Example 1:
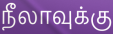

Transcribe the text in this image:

நீலாவுக்கு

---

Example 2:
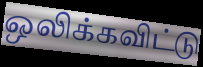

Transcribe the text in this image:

ஒலிக்கவிட்டு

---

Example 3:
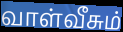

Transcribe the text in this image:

வாள்வீசும்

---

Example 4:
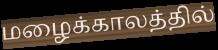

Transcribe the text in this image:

மழைக்காலத்தில்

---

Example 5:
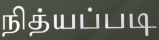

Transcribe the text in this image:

நித்யப்படி